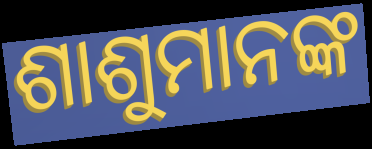
ଶାଶୁମାନଙ୍କ